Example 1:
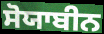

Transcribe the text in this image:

ਸੋਯਾਬੀਨ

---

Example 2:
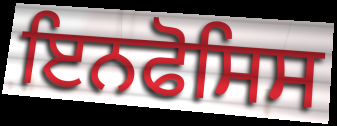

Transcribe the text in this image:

ਇਨਫੋਸਿਸ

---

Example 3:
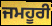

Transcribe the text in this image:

ਜਮਹੂਰੀ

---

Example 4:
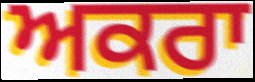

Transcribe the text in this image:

ਅਕਰਾ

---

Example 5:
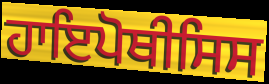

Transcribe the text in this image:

ਹਾਇਪੋਥੀਸਿਸ